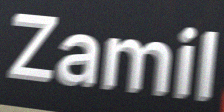
Zamil